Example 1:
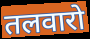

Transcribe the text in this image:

तलवारो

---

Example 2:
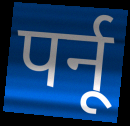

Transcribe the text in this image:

पर्नू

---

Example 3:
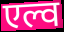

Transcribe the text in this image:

एल्व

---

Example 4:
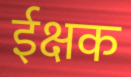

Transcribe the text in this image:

ईक्षक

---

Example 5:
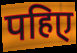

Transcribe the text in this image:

पहिए